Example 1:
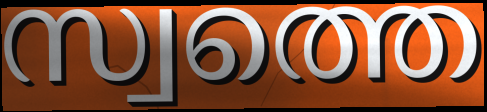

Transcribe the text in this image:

സ്വത്തെ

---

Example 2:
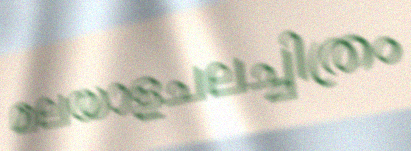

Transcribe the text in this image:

മലയാളചലച്ചിത്രം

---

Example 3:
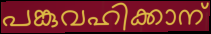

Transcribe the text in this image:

പങ്കുവഹിക്കാന്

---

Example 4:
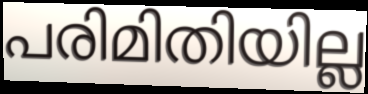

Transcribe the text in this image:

പരിമിതിയില്ല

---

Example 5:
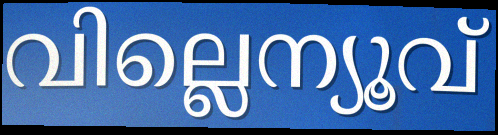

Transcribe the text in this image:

വില്ലെന്യൂവ്